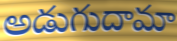
అడుగుదామా